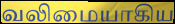
வலிமையாகிய